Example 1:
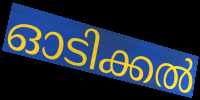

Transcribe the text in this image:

ഓടിക്കൽ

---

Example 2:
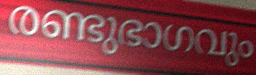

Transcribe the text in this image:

രണ്ടുഭാഗവും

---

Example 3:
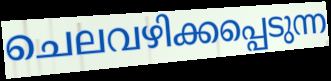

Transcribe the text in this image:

ചെലവഴിക്കപ്പെടുന്ന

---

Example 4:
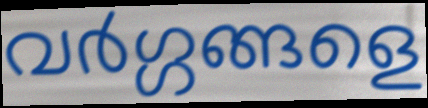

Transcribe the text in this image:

വർഗ്ഗങ്ങളെ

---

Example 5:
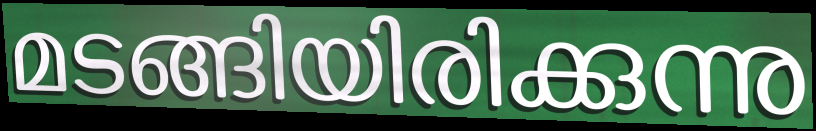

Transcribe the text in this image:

മടങ്ങിയിരിക്കുന്നു